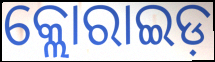
କ୍ଲୋରାଇଡ଼